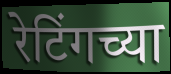
रेटिंगच्या